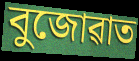
বুজোৱাত